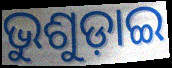
ଭୁଶୁଡ଼ାଇ